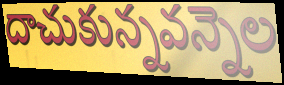
దాచుకున్నవన్నెల